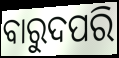
ବାରୁଦପରି